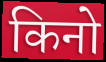
किनो